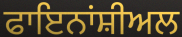
ਫਾਇਨਾਂਸ਼ੀਅਲ